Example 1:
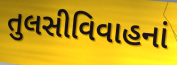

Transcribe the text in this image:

તુલસીવિવાહનાં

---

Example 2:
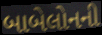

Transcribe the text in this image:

બાબેલોનની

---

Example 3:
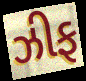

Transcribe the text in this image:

ઝીફ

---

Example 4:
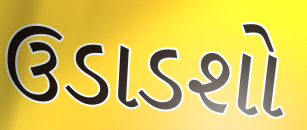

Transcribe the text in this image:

ઉડાડશો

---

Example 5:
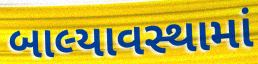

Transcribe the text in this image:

બાલ્યાવસ્થામાં